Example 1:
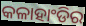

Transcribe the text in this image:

କଳାହାଂଡିର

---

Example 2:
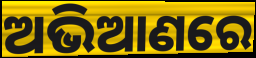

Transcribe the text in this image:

ଅଭିଆଣରେ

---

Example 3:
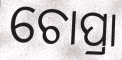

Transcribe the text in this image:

ଚୋପ୍ରା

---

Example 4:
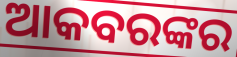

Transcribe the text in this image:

ଆକବରଙ୍କର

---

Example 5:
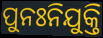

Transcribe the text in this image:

ପୁନଃନିଯୁକ୍ତି